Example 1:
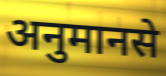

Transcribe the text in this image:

अनुमानसे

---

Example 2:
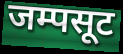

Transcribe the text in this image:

जम्पसूट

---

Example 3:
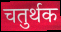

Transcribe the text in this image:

चतुर्थक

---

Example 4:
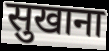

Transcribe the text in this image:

सुखाना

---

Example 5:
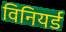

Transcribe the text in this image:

विनियर्ड